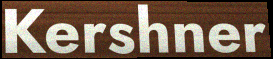
Kershner